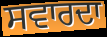
ਸਵਾਰਦਾ